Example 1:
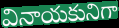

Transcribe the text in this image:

వినాయకునిగా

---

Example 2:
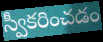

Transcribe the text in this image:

స్వీకరించడం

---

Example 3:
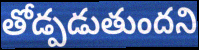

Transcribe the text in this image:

తోడ్పడుతుందని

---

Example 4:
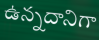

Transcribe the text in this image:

ఉన్నదానిగా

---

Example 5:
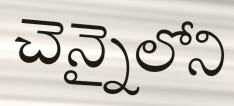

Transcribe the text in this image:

చెన్నైలోని